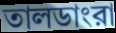
তালডাংরা